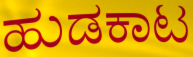
ಹುಡಕಾಟ